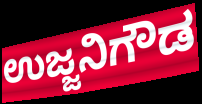
ಉಜ್ಜನಿಗೌಡ